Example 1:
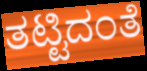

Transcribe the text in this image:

ತಟ್ಟಿದಂತೆ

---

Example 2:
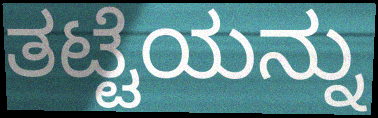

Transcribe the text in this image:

ತಟ್ಟೆಯನ್ನು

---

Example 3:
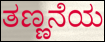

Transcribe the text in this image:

ತಣ್ಣನೆಯ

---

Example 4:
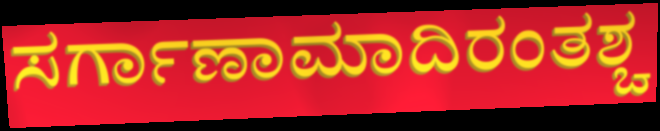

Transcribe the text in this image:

ಸರ್ಗಾಣಾಮಾದಿರಂತಶ್ಚ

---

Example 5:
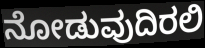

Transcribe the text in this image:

ನೋಡುವುದಿರಲಿ